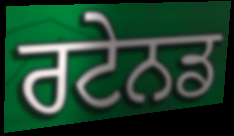
ਰਟੇਨਡ